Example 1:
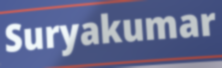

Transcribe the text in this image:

Suryakumar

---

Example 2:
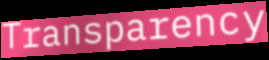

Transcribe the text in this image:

Transparency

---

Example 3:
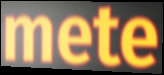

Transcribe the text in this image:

mete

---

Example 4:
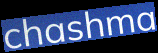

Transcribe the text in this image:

chashma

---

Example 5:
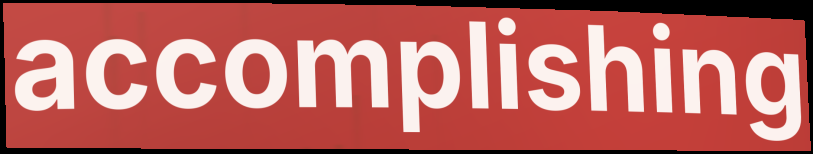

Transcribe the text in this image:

accomplishing